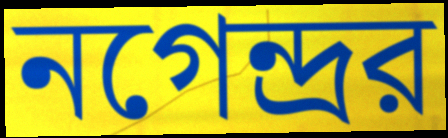
নগেন্দ্রর